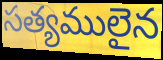
సత్యములైన